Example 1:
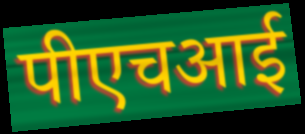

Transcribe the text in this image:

पीएचआई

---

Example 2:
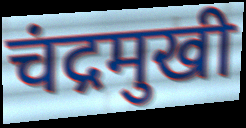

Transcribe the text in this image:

चंद्रमुखी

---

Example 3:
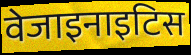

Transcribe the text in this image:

वेजाइनाइटिस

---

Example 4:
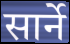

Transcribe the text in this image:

सार्ने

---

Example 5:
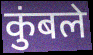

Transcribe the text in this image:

कुंबले